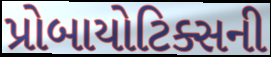
પ્રોબાયોટિક્સની